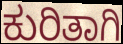
ಕುರಿತಾಗಿ